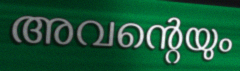
അവന്റെയും